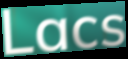
Lacs